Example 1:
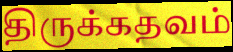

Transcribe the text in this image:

திருக்கதவம்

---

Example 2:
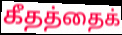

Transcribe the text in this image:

கீதத்தைக்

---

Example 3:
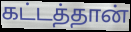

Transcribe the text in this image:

கட்டத்தான்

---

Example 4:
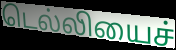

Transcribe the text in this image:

டெல்லியைச்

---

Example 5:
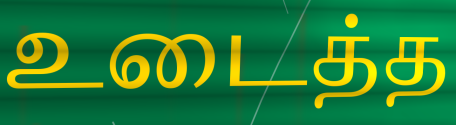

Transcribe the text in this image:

உடைத்த